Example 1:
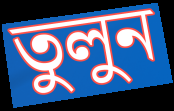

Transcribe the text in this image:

তুলুন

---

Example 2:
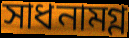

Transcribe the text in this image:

সাধনামগ্ন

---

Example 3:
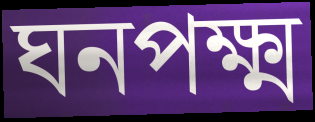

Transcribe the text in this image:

ঘনপক্ষ্ম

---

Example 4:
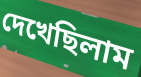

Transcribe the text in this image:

দেখেছিলাম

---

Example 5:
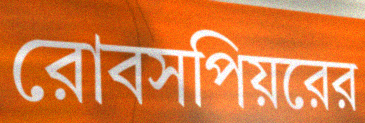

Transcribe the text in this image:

রোবসপিয়রের